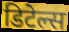
डिटेल्स